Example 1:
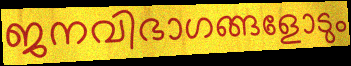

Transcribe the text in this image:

ജനവിഭാഗങ്ങളോടും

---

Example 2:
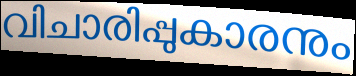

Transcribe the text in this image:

വിചാരിപ്പുകാരനും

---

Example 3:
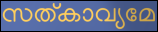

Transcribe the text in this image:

സത്കാവ്യമേ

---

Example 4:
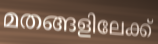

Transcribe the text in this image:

മതങ്ങളിലേക്ക്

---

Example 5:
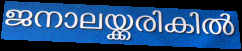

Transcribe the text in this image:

ജനാലയ്ക്കരികിൽ